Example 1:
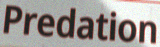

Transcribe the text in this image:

Predation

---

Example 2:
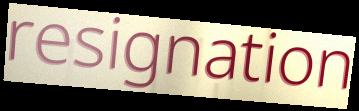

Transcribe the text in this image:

resignation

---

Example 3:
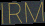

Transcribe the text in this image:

IRM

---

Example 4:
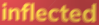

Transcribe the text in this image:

inflected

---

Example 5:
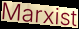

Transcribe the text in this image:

Marxist